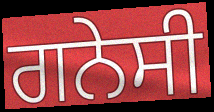
ਗਨੇਸੀ